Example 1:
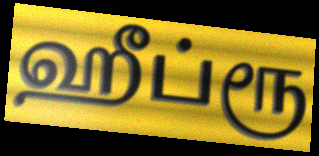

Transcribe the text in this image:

ஹீப்ரூ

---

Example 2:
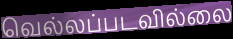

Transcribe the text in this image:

வெல்லப்படவில்லை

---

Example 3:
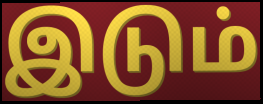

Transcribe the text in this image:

இடும்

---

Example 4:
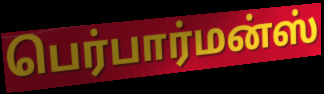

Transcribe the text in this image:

பெர்பார்மன்ஸ்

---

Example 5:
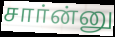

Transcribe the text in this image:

சார்ன்னு